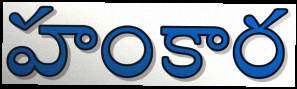
హంకార